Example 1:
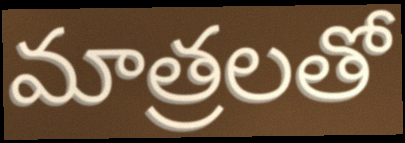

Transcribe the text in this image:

మాత్రలతో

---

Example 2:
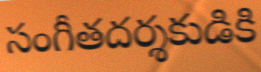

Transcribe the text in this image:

సంగీతదర్శకుడికి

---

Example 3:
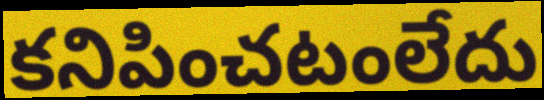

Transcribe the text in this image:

కనిపించటంలేదు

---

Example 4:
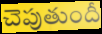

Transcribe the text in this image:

చెపుతుందీ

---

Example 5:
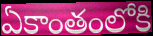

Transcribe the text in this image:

ఏకాంతంలోకి